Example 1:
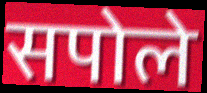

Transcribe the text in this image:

सपोले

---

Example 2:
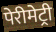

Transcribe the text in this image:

पेरीमेट्री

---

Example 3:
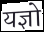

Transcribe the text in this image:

यज्ञो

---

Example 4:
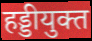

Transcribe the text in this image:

हड्डीयुक्त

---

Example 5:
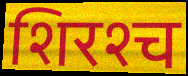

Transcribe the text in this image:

शिरश्च